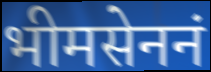
भीमसेननं